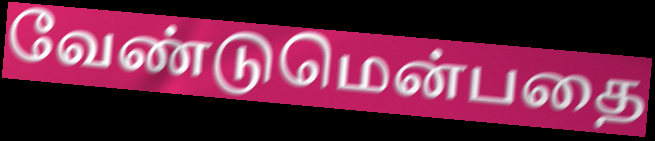
வேண்டுமென்பதை